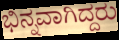
ಭಿನ್ನವಾಗಿದ್ದರು